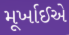
મૂર્ખાઈએ